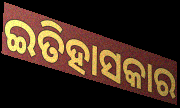
ଇତିହାସକାର